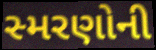
સ્મરણોની